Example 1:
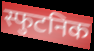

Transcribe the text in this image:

स्फुटनिक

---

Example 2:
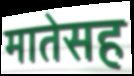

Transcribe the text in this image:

मातेसह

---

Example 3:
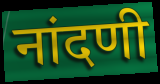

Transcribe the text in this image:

नांदणी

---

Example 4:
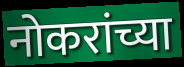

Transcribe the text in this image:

नोकरांच्या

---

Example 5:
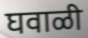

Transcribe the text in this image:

घवाळी